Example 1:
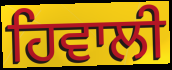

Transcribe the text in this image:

ਹਿਵਾਲੀ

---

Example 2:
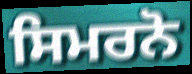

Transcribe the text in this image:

ਸਿਮਰਨੋ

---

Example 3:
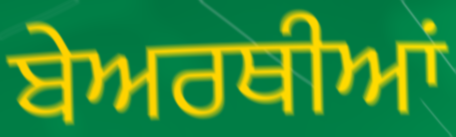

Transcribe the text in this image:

ਬੇਅਰਥੀਆਂ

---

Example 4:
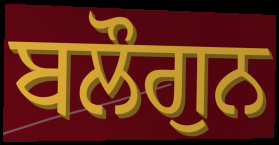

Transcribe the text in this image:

ਬਲੌਗੁਨ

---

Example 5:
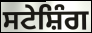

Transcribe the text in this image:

ਸਟੇਸ਼ਿੰਗ